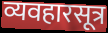
व्यवहारसूत्र